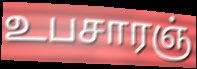
உபசாரஞ்